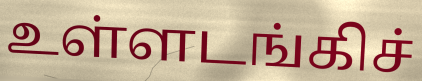
உள்ளடங்கிச்